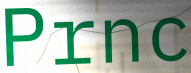
Prnc